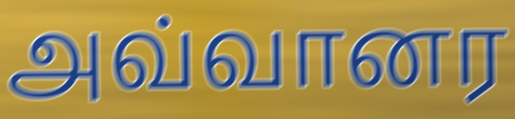
அவ்வானர